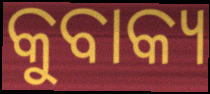
କୁବାକ୍ୟ